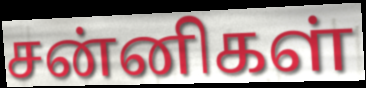
சன்னிகள்